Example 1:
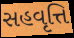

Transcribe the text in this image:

સહવૃત્તિ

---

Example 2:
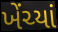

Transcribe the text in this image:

ખેંચ્યાં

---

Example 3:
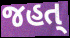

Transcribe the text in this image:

જહત્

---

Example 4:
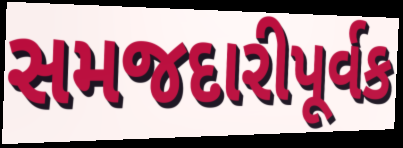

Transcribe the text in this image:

સમજદારીપૂર્વક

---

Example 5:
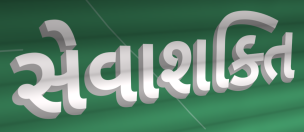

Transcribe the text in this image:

સેવાશક્તિ